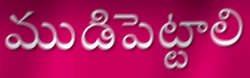
ముడిపెట్టాలి